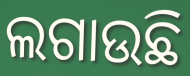
ଲଗାଉଛି